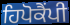
ਹਿਪੋਕੈਂਪੀ